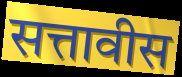
सत्तावीस